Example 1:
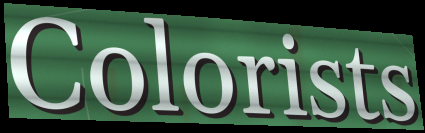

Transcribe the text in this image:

Colorists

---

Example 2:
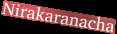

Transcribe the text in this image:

Nirakaranacha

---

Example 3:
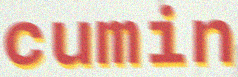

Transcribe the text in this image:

cumin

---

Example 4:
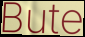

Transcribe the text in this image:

Bute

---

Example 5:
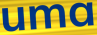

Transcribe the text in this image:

uma